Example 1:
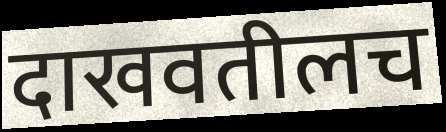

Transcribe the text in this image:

दाखवतीलच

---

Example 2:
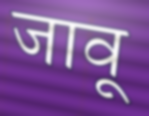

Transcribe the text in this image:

जावू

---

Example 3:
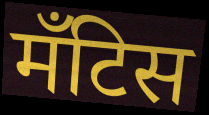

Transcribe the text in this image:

मँटिस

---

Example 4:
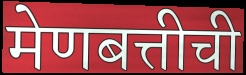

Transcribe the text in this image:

मेणबत्तीची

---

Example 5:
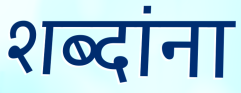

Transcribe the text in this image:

शब्दांना